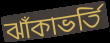
ঝাঁকাভর্তি